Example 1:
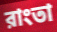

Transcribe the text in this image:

রাংতা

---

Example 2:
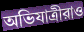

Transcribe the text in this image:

অভিযাত্রীরাও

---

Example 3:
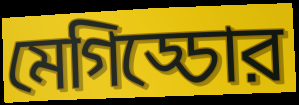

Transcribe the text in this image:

মেগিড্ডোর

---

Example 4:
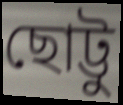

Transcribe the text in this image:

ছোট্টু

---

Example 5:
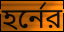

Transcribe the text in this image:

হর্নের